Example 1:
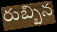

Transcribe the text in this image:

రుబ్బిన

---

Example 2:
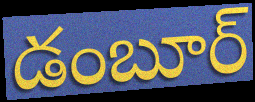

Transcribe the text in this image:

డంబూర్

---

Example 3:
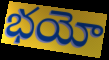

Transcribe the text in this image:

భయో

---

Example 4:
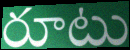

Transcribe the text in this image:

రూటు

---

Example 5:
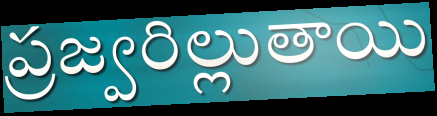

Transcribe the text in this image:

ప్రజ్వరిల్లుతాయి